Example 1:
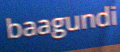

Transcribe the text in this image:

baagundi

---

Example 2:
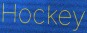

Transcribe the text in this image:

Hockey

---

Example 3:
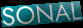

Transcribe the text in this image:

SONAL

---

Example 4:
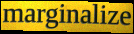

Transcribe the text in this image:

marginalize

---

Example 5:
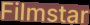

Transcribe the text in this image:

Filmstar